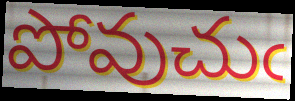
పోవుచుఁ